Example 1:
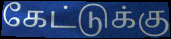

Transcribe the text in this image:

கேட்டுக்கு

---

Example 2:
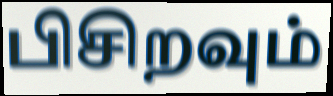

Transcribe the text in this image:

பிசிறவும்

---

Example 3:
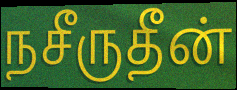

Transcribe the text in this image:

நசீருதீன்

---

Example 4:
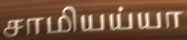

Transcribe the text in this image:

சாமியய்யா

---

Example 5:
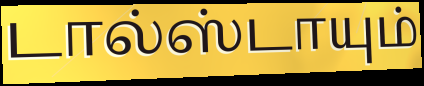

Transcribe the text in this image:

டால்ஸ்டாயும்